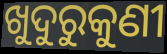
ଖୁଦୁରୁକୁଣୀ